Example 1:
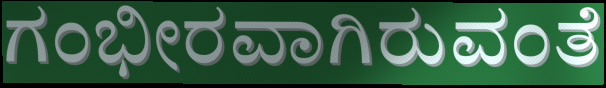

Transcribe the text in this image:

ಗಂಭೀರವಾಗಿರುವಂತೆ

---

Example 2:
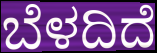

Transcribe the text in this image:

ಬೆಳದಿದೆ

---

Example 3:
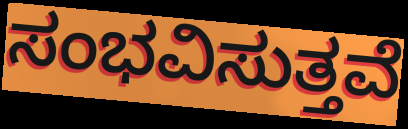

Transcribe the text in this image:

ಸಂಭವಿಸುತ್ತವೆ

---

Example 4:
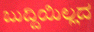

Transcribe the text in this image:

ಬುದ್ದಿಯಿಲ್ಲದ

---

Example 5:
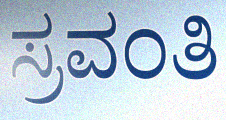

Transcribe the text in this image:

ಸ್ರವಂತಿ